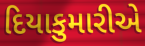
દિયાકુમારીએ